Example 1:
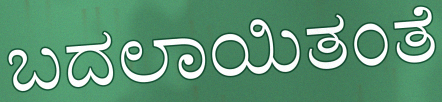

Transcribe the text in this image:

ಬದಲಾಯಿತಂತೆ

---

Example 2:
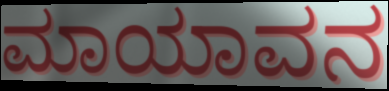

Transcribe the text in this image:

ಮಾಯಾವನ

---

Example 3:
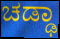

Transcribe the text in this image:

ಚಡ್ಢಾ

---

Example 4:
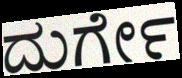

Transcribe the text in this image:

ದುರ್ಗೇ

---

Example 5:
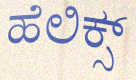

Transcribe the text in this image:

ಹೆಲಿಕ್ಸ್